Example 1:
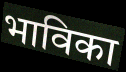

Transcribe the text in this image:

भाविका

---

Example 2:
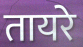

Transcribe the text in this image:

तायरे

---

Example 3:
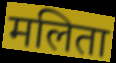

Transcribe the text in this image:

मलिता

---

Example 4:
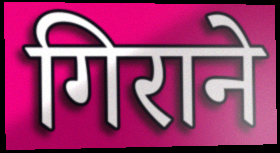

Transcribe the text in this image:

गिराने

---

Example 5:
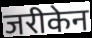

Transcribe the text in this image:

जरीकेन